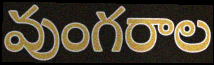
వుంగరాల